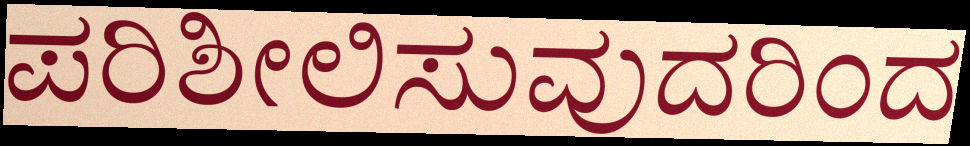
ಪರಿಶೀಲಿಸುವುದರಿಂದ